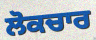
ਲੋਕਚਾਰ